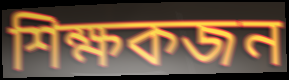
শিক্ষকজন